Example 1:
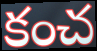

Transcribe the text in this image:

కంచ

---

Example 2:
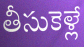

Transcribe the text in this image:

తీసుకెళ్లే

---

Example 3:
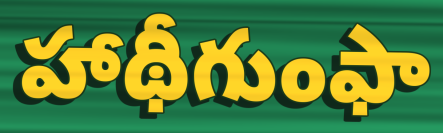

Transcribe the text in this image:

హాథీగుంఫా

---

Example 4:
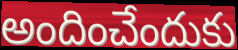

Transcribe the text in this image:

అందించేందుకు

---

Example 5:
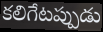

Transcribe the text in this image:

కలిగేటప్పుడు